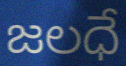
జలధే